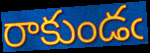
రాకుండఁ